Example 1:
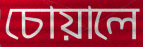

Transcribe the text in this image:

চোয়ালে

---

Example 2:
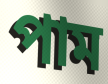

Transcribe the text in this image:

পাম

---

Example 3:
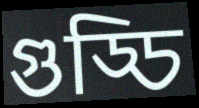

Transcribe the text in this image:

গুড্ডি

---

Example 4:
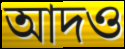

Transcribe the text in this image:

আদও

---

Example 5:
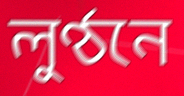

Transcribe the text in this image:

লুণ্ঠনে